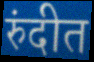
रुंदीत